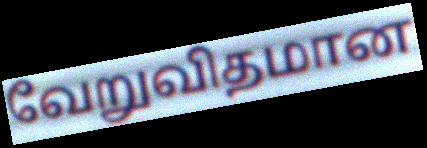
வேறுவிதமான